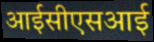
आईसीएसआई